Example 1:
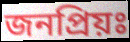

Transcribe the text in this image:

জনপ্রিয়ঃ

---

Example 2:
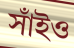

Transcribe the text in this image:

সাঁইও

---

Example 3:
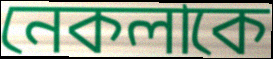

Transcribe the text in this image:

নেকলাকে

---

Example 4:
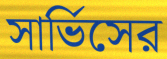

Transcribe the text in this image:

সার্ভিসের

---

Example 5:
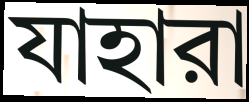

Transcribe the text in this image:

যাহারা